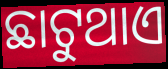
ଛାଟୁଥାଏ